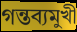
গন্তব্যমুখী